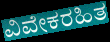
ವಿವೇಕರಹಿತ